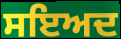
ਸਇਅਦ